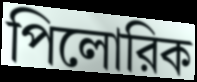
পিলোরিক